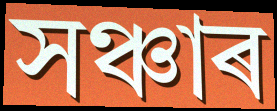
সঞ্চাৰ